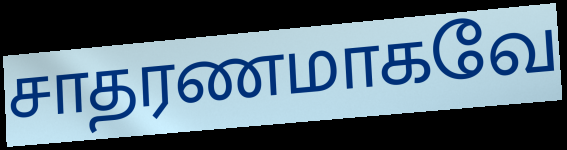
சாதரணமாகவே